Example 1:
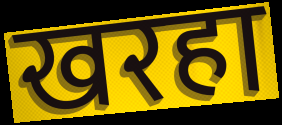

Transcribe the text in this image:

खरहा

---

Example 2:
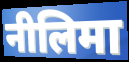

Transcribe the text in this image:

नीलिमा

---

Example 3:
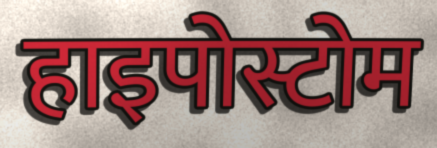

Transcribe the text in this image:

हाइपोस्टोम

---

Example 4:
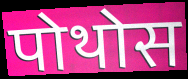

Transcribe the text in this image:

पोथोस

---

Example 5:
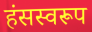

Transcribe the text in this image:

हंसस्वरूप